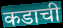
कडाची